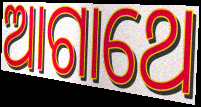
ଆଗାଥେ